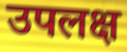
उपलक्ष